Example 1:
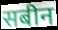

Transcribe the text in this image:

सबीन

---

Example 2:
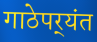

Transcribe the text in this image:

गाठेपर्यंत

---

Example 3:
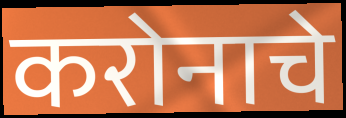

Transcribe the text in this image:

करोनाचे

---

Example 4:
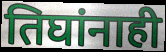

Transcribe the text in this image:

तिघांनाही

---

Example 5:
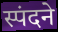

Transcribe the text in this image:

स्पंदने